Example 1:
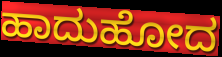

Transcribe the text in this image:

ಹಾದುಹೋದ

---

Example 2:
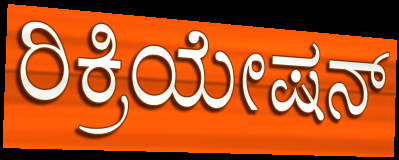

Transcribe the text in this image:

ರಿಕ್ರಿಯೇಷನ್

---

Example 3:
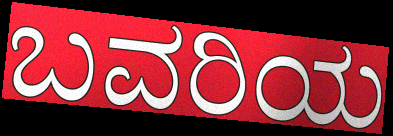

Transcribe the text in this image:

ಬವರಿಯ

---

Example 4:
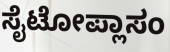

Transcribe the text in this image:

ಸೈಟೋಪ್ಲಾಸಂ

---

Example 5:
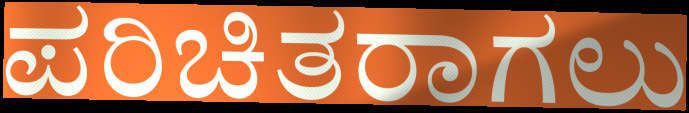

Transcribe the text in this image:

ಪರಿಚಿತರಾಗಲು